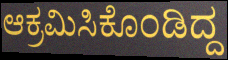
ಆಕ್ರಮಿಸಿಕೊಂಡಿದ್ದ